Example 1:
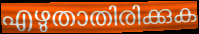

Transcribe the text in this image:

എഴുതാതിരിക്കുക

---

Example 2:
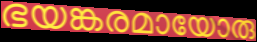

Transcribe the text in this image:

ഭയങ്കരമായോരു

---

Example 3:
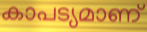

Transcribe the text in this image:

കാപട്യമാണ്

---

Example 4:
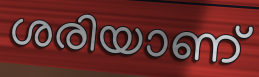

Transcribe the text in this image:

ശരിയാണ്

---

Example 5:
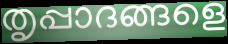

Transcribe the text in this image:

തൃപ്പാദങ്ങളെ